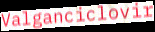
Valganciclovir